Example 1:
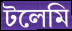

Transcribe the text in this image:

টলেমি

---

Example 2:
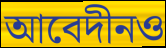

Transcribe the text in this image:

আবেদীনও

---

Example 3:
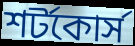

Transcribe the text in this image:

শর্টকোর্স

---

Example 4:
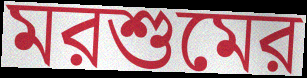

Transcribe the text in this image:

মরশুমের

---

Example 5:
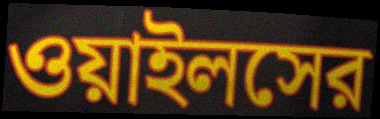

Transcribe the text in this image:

ওয়াইলসের